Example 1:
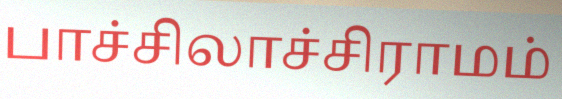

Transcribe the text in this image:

பாச்சிலாச்சிராமம்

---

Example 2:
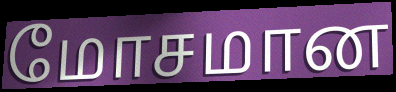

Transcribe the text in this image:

மோசமான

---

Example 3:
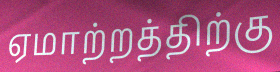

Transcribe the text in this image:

ஏமாற்றத்திற்கு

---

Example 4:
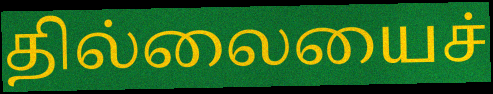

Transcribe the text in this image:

தில்லையைச்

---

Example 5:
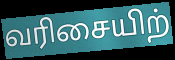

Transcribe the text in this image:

வரிசையிற்